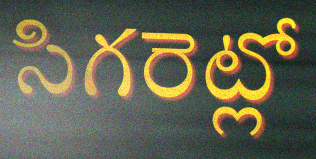
సిగరెట్లో